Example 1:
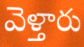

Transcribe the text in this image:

వెళ్తారు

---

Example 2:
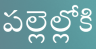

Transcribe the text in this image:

పల్లెల్లోకి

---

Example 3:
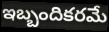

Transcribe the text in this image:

ఇబ్బందికరమే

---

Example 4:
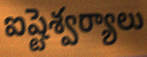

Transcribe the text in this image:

ఐష్టెశ్వర్యాలు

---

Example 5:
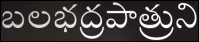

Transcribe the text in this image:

బలభద్రపాత్రుని